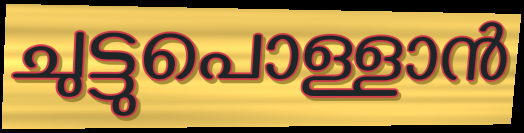
ചുട്ടുപൊള്ളാൻ